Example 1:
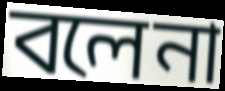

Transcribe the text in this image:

বলেনা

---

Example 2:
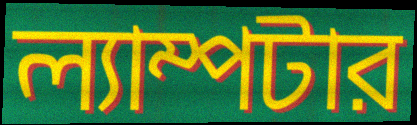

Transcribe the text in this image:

ল্যাম্পটার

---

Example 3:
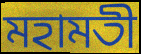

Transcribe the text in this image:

মহামতী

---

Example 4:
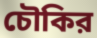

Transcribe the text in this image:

চৌকির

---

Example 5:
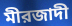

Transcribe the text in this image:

মীরজাদী